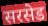
सरसेड